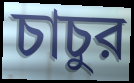
চাচুর